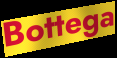
Bottega